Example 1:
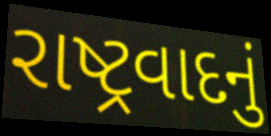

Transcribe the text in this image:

રાષ્ટ્રવાદનું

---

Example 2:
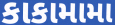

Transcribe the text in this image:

કાકામામા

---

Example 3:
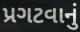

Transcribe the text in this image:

પ્રગટવાનું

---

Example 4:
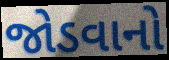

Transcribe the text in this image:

જોડવાનો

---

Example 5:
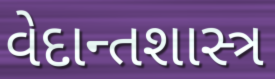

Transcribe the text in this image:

વેદાન્તશાસ્ત્ર